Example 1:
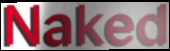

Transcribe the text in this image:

Naked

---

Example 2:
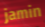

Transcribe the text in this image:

jamin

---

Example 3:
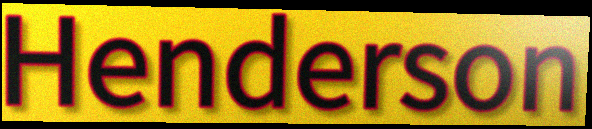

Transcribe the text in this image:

Henderson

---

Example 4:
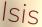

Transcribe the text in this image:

Isis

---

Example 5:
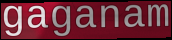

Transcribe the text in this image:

gaganam